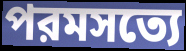
পরমসত্যে